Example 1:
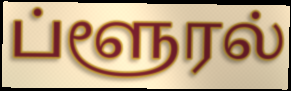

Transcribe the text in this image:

ப்ளூரல்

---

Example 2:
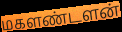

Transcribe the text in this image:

மகளண்டளன்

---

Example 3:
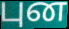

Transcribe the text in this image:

புன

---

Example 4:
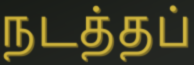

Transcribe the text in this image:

நடத்தப்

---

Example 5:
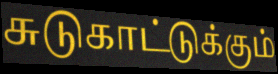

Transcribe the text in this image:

சுடுகாட்டுக்கும்